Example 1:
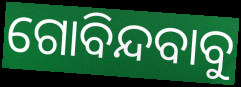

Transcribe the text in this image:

ଗୋବିନ୍ଦବାବୁ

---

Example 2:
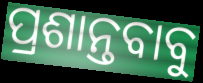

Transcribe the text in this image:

ପ୍ରଶାନ୍ତବାବୁ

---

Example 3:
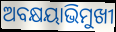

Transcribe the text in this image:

ଅବକ୍ଷୟାଭିମୁଖୀ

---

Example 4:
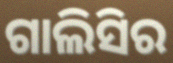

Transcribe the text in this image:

ଗାଲିସିର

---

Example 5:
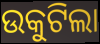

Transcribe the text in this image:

ଉକୁଟିଲା